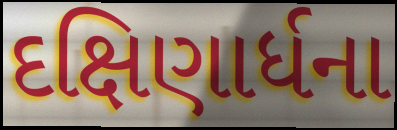
દક્ષિણાર્ધના